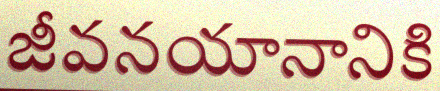
జీవనయానానికి